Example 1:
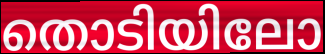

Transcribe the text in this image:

തൊടിയിലോ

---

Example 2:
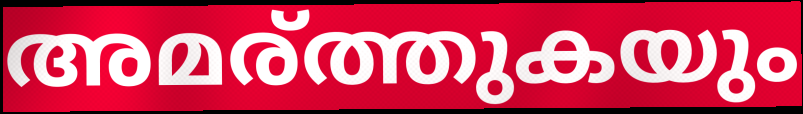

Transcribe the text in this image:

അമര്ത്തുകയും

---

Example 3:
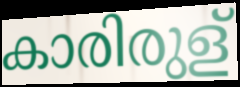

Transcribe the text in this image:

കാരിരുള്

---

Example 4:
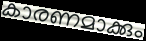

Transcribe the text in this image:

കാരണമാക്കും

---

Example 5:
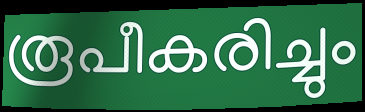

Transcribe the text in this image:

രൂപീകരിച്ചും